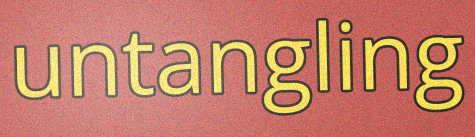
untangling